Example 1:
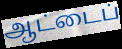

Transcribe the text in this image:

ஆட்டைப்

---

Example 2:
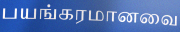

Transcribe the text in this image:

பயங்கரமானவை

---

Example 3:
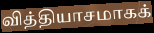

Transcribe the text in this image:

வித்தியாசமாகக்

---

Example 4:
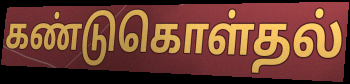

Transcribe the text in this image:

கண்டுகொள்தல்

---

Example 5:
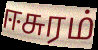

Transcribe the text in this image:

ஈசுரம்